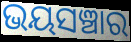
ଭୟସଞ୍ଚାର